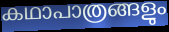
കഥാപാത്രങ്ങളും